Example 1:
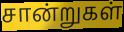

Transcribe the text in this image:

சான்றுகள்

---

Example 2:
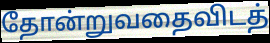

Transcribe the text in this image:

தோன்றுவதைவிடத்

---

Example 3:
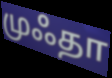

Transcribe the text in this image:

முஃதா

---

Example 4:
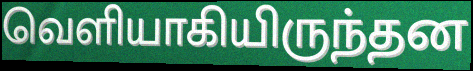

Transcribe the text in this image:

வெளியாகியிருந்தன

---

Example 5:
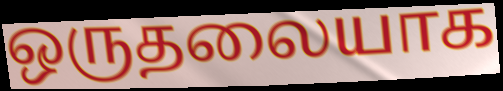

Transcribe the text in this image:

ஒருதலையாக